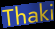
Thaki